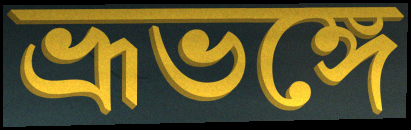
ভ্রূভঙ্গে